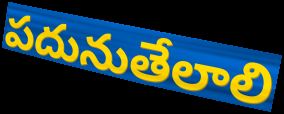
పదునుతేలాలి